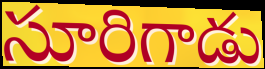
సూరిగాడు